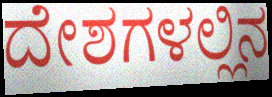
ದೇಶಗಳಲ್ಲಿನ